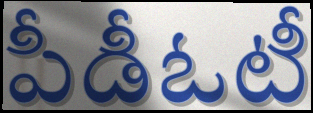
పీడీఓటీ